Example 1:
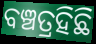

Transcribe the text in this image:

ବଞ୍ଚତ୍ରହିଛି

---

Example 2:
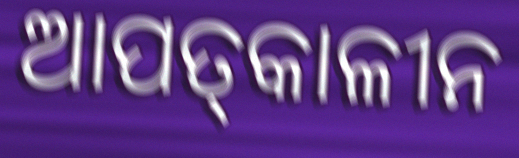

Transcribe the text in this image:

ଆପତ୍‌କାଳୀନ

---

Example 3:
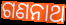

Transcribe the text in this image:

ଗଣନାଥ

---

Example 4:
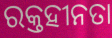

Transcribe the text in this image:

ରକ୍ତହୀନତା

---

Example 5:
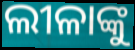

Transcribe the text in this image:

ଲୀଳାଙ୍କୁ